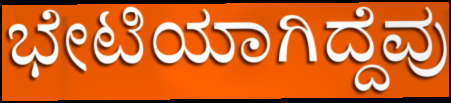
ಭೇಟಿಯಾಗಿದ್ದೆವು